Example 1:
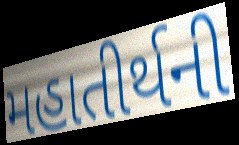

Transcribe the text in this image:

મહાતીર્થની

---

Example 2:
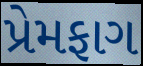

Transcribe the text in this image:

પ્રેમફાગ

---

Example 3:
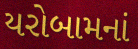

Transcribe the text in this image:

યરોબામનાં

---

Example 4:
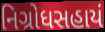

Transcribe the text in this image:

નિગ્રોધસહાયં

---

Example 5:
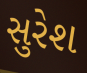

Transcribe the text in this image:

સુરેશ